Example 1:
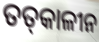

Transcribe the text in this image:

ତତ୍‌କାଳୀନ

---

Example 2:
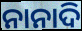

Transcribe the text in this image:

ନାନାଦି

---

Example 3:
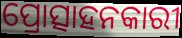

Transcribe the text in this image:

ପ୍ରୋତ୍ସାହନକାରୀ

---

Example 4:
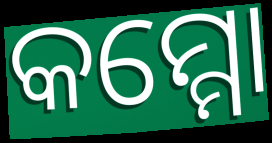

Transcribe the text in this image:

କମ୍ମୋ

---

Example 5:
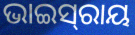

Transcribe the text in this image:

ଭାଇସ୍‍ରାୟ